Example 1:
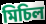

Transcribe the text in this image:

মিচিল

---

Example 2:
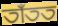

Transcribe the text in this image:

তাঁতত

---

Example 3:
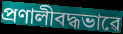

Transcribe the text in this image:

প্ৰণালীবদ্ধভাৱে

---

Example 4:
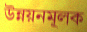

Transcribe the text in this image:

উন্নয়নমূলক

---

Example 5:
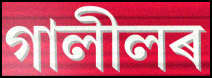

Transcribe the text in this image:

গালীলৰ